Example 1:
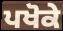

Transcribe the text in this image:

ਪਖੋਕੇ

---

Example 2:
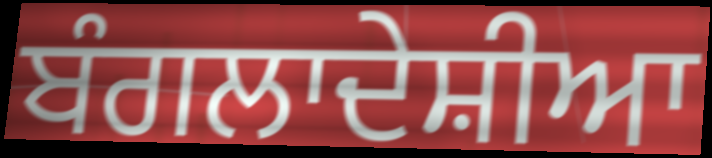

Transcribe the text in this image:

ਬੰਗਲਾਦੇਸ਼ੀਆ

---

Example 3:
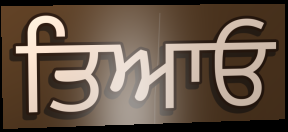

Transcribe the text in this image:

ਤਿਆਓ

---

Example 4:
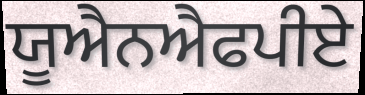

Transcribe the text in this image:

ਯੂਐਨਐਫਪੀਏ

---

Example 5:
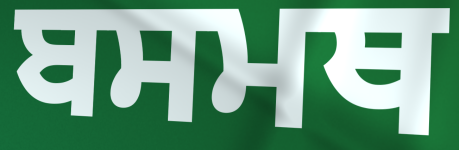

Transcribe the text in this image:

ਬਸਮਥ